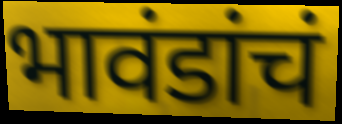
भावंडांचं